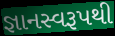
જ્ઞાનસ્વરૂપથી